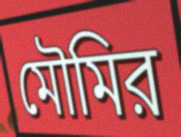
মৌমির